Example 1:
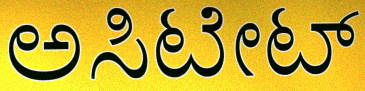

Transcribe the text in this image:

ಅಸಿಟೇಟ್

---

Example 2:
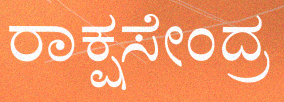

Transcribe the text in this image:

ರಾಕ್ಷಸೇಂದ್ರ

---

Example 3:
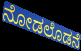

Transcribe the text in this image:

ನೋಡಲೊಡನೆ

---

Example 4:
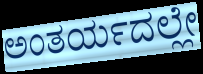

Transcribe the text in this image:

ಅಂತರ್ಯದಲ್ಲೇ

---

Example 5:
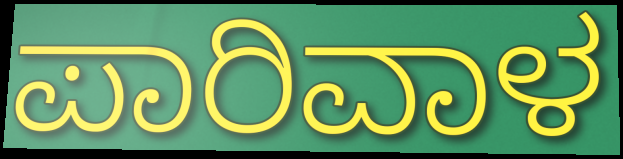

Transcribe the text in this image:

ಪಾರಿವಾಳ